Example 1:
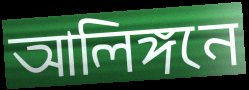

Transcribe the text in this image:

আলিঙ্গনে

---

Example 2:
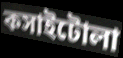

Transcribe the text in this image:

কসাইটোলা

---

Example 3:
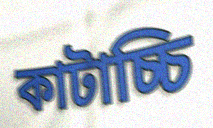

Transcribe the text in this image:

কাটাচ্চি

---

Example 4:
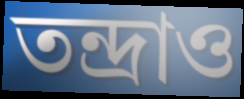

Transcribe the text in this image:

তন্দ্রাও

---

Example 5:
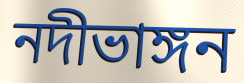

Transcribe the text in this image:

নদীভাঙ্গন